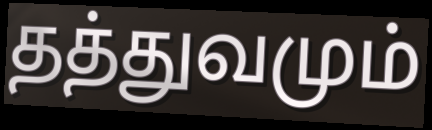
தத்துவமும்